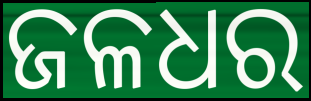
ଜଳଧର